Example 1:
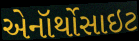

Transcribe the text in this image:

એનૉર્થોસાઇટ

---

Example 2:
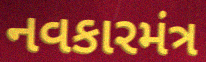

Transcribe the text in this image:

નવકારમંત્ર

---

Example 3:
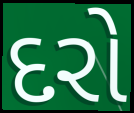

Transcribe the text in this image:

દરો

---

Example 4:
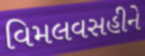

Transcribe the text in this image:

વિમલવસહીને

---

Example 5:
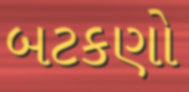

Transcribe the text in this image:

બટકણો